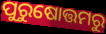
ପୁରୁଷୋତ୍ତମରୁ